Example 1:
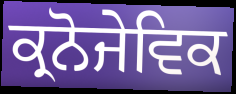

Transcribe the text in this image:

ਕ੍ਰਨੋਜੇਵਿਕ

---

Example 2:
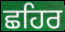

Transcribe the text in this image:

ਛਹਿਰ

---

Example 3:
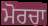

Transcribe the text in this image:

ਮੋਰਚਾ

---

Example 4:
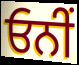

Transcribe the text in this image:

ਓਨੀਂ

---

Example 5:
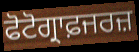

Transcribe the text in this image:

ਫੋਟੋਗ੍ਰਾਫ਼ਜਰਜ਼